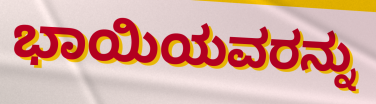
ಭಾಯಿಯವರನ್ನು